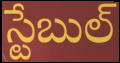
స్టేబుల్